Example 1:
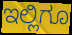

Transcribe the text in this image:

ಇಲ್ಲಿಗೂ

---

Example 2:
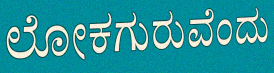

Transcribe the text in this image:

ಲೋಕಗುರುವೆಂದು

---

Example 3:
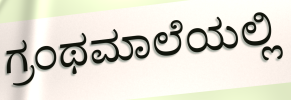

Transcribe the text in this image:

ಗ್ರಂಥಮಾಲೆಯಲ್ಲಿ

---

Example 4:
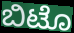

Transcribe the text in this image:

ಬಿಟೊ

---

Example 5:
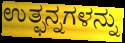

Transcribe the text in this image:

ಉತ್ಫನ್ನಗಳನ್ನು